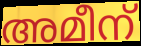
അമീന്